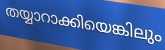
തയ്യാറാക്കിയെങ്കിലും